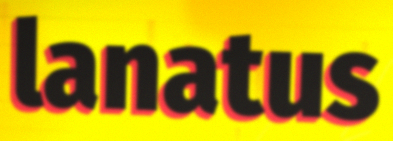
lanatus